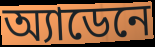
অ্যাডেনে